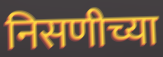
निसणीच्या